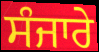
ਸੰਜਾਰੇ